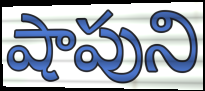
షాపుని